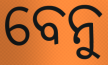
ବେନୁ